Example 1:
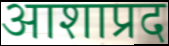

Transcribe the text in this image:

आशाप्रद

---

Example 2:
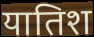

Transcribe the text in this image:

यातिश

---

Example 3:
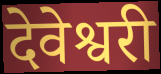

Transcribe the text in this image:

देवेश्वरी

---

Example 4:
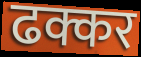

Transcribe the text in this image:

ढक्कर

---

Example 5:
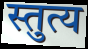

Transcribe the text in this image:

स्तुत्य